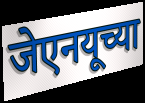
जेएनयूच्या